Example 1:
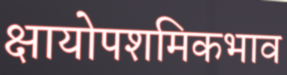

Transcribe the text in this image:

क्षायोपशमिकभाव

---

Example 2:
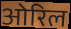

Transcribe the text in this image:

ओरिल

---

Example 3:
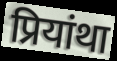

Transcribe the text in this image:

प्रियांथा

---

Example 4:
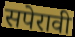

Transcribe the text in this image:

सपेरावी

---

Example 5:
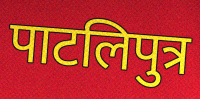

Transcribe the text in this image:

पाटलिपुत्र